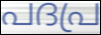
പദപ്ര